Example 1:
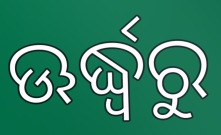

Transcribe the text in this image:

ଊର୍ଦ୍ଧ୍ଵରୁ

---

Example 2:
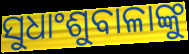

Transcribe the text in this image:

ସୁଧାଂଶୁବାଳାଙ୍କୁ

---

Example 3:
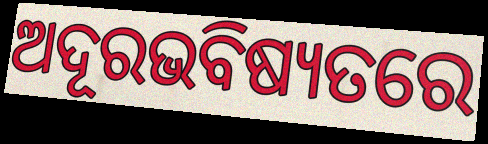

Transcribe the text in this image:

ଅଦୂରଭବିଷ୍ୟତରେ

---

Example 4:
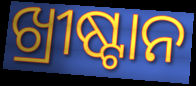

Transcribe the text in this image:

ଖ୍ରୀଷ୍ଟାନ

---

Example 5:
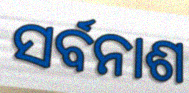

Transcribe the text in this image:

ସର୍ବନାଶ